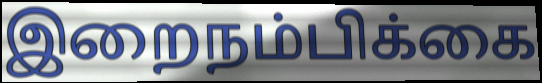
இறைநம்பிக்கை